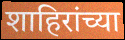
शाहिरांच्या